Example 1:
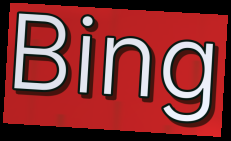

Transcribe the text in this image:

Bing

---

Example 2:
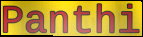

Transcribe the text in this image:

Panthi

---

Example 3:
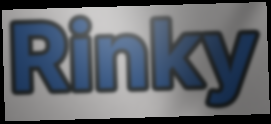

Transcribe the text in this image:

Rinky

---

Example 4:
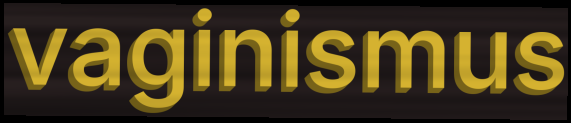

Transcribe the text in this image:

vaginismus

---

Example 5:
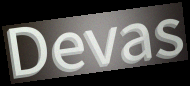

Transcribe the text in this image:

Devas